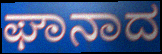
ಘಾನಾದ